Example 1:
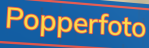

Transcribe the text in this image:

Popperfoto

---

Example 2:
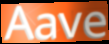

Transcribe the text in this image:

Aave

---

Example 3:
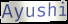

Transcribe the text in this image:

Ayushi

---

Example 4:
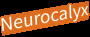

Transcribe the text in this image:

Neurocalyx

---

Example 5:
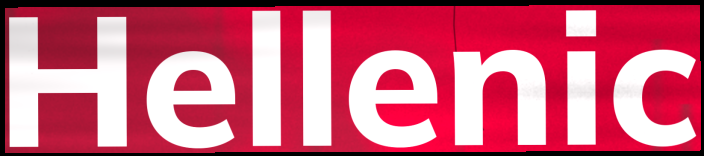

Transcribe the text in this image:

Hellenic